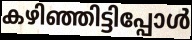
കഴിഞ്ഞിട്ടിപ്പോൾ